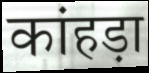
कांहड़ा